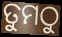
ତୁମଠୁ